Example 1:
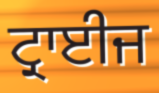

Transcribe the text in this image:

ਟ੍ਰਾਈਜ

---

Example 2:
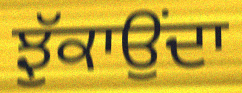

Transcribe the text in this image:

ਝੁੱਕਾਉਂਦਾ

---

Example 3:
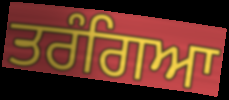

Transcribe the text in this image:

ਤਰੰਗਿਆ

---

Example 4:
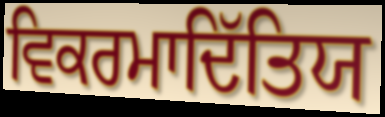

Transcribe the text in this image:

ਵਿਕਰਮਾਦਿੱਤਿਯ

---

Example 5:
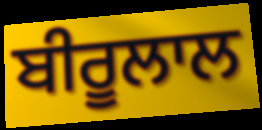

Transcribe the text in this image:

ਬੀਰੂਲਾਲ